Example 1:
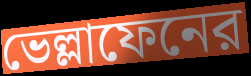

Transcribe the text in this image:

ভেল্লাফেনের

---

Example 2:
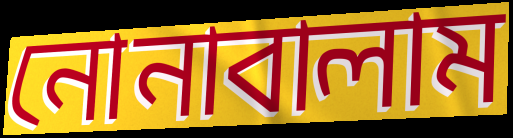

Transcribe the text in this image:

নোনাবালাম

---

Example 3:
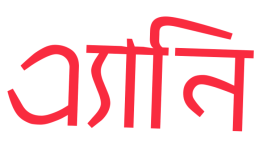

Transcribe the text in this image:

এ্যানি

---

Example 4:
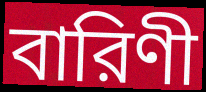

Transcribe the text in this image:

বারিণী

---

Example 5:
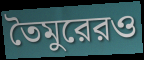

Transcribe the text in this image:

তৈমুরেরও